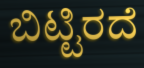
ಬಿಟ್ಟಿರದೆ